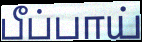
பீப்பாய்